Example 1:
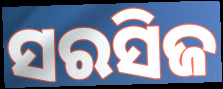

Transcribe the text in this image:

ସରସିଜ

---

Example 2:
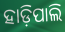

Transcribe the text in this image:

ହାଡ଼ିପାଲି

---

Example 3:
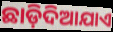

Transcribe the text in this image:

ଛାଡ଼ିଦିଆଯାଏ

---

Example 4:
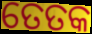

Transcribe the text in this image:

ତେତକ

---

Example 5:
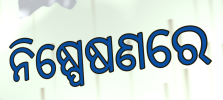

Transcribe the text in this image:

ନିଷ୍ପେଷଣରେ